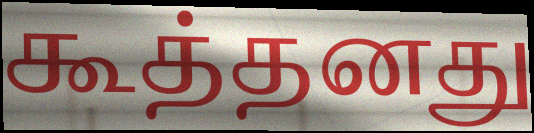
கூத்தனது